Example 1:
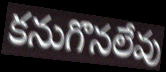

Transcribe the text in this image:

కనుగొనలేవు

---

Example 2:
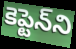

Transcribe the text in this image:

కెప్టెన్‌ని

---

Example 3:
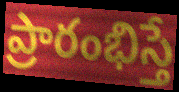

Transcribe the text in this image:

ప్రారంభిస్తే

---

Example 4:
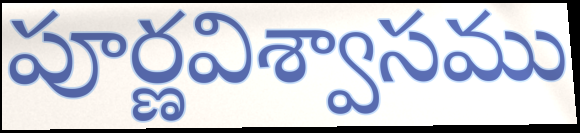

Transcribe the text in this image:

పూర్ణవిశ్వాసము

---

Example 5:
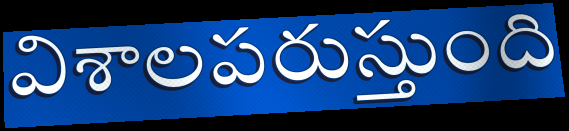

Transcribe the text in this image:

విశాలపరుస్తుంది